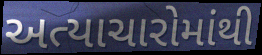
અત્યાચારોમાંથી